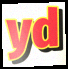
yd